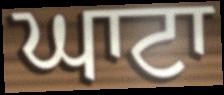
ਘਾਟਾ